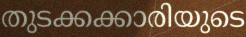
തുടക്കക്കാരിയുടെ